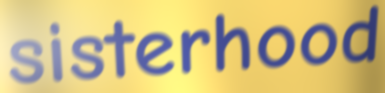
sisterhood